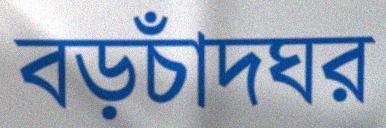
বড়চাঁদঘর